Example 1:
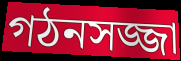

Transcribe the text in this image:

গঠনসজ্জা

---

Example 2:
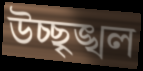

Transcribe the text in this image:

উচ্ছৃঙ্খল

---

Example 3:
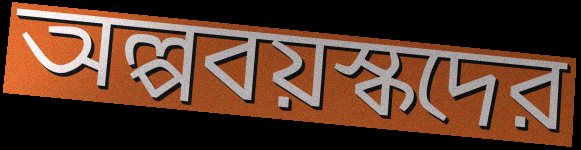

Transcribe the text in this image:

অল্পবয়স্কদের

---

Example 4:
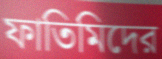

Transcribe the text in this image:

ফাতিমিদের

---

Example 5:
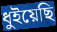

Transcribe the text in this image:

ধুইয়েছি